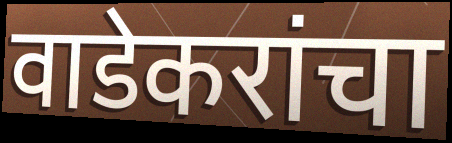
वाडेकरांचा